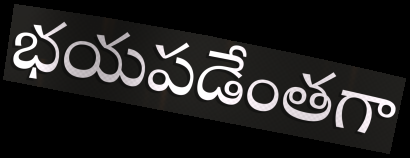
భయపడేంతగా